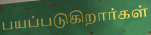
பயப்படுகிறார்கள்